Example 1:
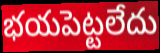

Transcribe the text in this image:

భయపెట్టలేదు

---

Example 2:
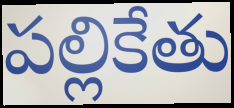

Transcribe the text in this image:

పల్లికేతు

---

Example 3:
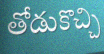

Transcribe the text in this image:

తోడుకొచ్చి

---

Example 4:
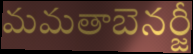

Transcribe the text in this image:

మమతాబెనర్జీ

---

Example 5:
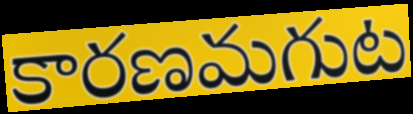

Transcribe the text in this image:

కారణమగుట